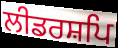
ਲੀਡਰਸ਼ਪਿ